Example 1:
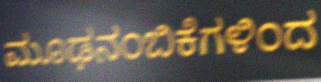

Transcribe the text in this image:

ಮೂಢನಂಬಿಕೆಗಳಿಂದ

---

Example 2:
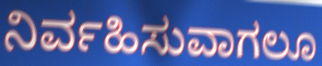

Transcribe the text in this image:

ನಿರ್ವಹಿಸುವಾಗಲೂ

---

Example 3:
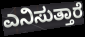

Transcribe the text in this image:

ಎನಿಸುತ್ತಾರೆ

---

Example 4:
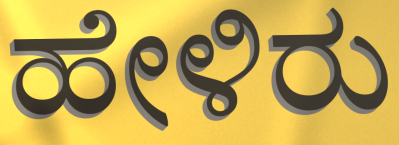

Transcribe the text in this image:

ಹೇಳಿರು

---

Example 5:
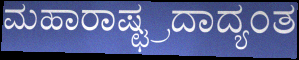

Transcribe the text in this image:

ಮಹಾರಾಷ್ಟ್ರದಾದ್ಯಂತ